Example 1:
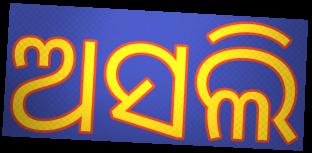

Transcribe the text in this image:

ଅସଲି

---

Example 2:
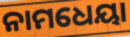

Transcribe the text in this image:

ନାମଧେୟା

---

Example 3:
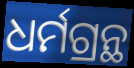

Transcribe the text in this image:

ଧର୍ମଗ୍ରନ୍ଥ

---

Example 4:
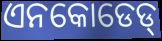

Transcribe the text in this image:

ଏନକୋଡେଡ୍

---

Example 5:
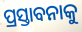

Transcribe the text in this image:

ପ୍ରସ୍ତାବନାକୁ